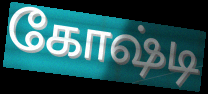
கோஷ்டி